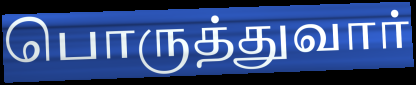
பொருத்துவார்